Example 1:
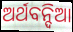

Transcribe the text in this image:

ଅର୍ଥବନ୍ଦିଆ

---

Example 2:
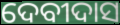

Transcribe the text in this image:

ଦେବୀଦାସ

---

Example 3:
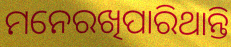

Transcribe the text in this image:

ମନେରଖିପାରିଥାନ୍ତି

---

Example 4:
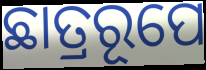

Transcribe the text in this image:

ଛାତ୍ରରୂପେ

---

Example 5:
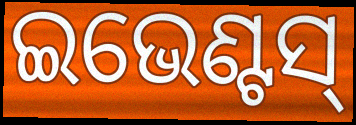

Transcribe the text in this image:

ଇଭେଣ୍ଟସ୍